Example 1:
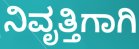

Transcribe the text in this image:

ನಿವೃತ್ತಿಗಾಗಿ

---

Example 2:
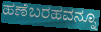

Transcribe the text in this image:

ಹಣೆಬರಹವನ್ನೂ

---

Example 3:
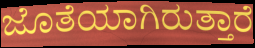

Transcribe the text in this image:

ಜೊತೆಯಾಗಿರುತ್ತಾರೆ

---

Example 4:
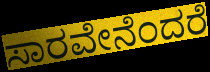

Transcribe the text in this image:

ಸಾರವೇನೆಂದರೆ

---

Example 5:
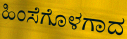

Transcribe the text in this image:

ಹಿಂಸೆಗೊಳಗಾದ